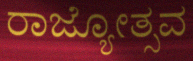
ರಾಜ್ಯೋತ್ಸವ